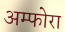
अम्फोरा